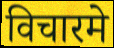
विचारमे